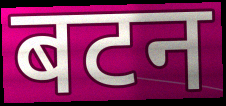
बटन